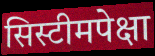
सिस्टीमपेक्षा